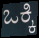
ಒಕ್ಕಿ